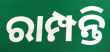
ରାମ୍ପନ୍ତି